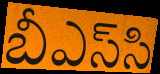
బీఎస్‌సి